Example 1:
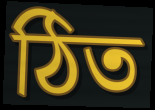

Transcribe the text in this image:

ঠিত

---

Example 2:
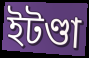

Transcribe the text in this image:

ইটণ্ডা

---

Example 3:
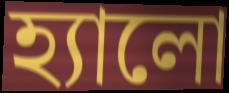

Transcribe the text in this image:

হ্যালো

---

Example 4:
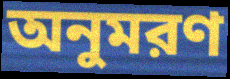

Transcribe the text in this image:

অনুমরণ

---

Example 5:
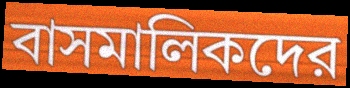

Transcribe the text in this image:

বাসমালিকদের